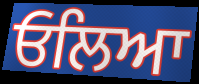
ਓਲਿਆ